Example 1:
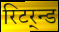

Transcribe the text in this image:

रिटर्न्ड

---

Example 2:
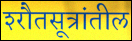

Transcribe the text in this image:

श्रौतसूत्रांतील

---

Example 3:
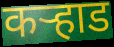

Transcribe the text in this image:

कऱ्हाड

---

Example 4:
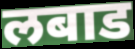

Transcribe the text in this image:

लबाड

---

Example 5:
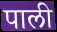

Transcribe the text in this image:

पाली